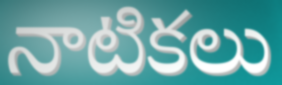
నాటికలు